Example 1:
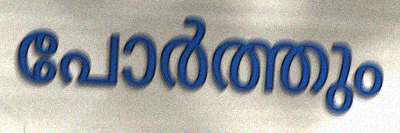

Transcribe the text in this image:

പോർത്തും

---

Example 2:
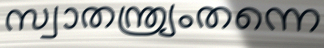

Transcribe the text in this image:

സ്വാതന്ത്ര്യംതന്നെ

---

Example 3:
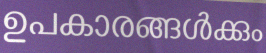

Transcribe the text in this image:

ഉപകാരങ്ങൾക്കും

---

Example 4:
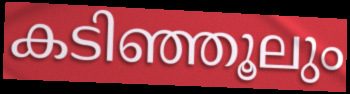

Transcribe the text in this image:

കടിഞ്ഞൂലും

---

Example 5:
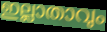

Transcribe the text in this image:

ഇല്ലാതാവും